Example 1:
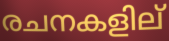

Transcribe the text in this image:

രചനകളില്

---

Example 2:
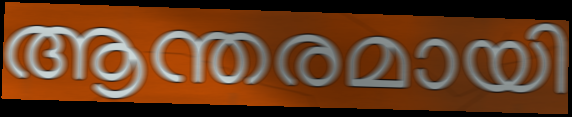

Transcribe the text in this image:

ആന്തരമായി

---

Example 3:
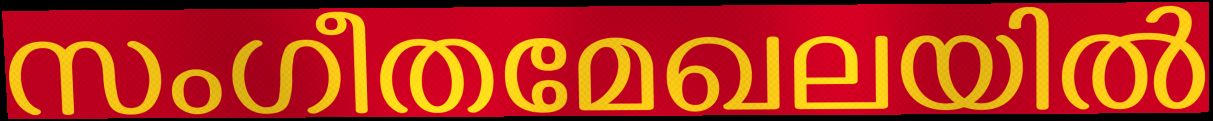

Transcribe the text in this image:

സംഗീതമേഖലയിൽ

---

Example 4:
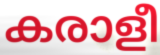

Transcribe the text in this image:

കരാളീ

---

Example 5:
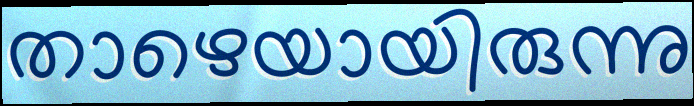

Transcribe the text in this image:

താഴെയായിരുന്നു